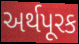
અર્થપૂરક